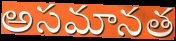
అసమానత